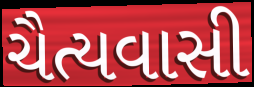
ચૈત્યવાસી